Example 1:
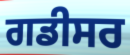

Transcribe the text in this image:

ਗਡੀਸਰ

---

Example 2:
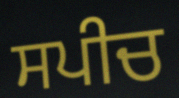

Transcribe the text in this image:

ਸਪੀਚ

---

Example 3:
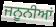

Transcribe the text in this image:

ਜਨੂਨੀਆਂ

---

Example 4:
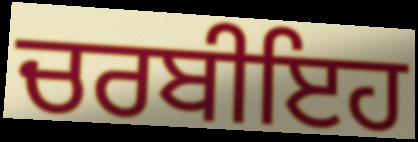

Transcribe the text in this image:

ਚਰਬੀਇਹ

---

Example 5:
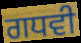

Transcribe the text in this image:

ਗਧਵੀ